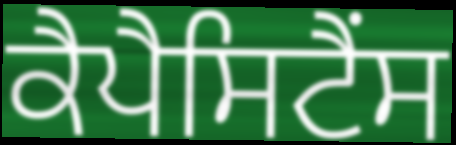
ਕੈਪੈਸਿਟੈਂਸ